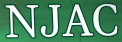
NJAC